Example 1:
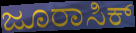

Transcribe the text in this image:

ಜೂರಾಸಿಕ್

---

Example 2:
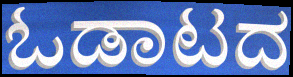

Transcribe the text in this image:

ಓಡಾಟದ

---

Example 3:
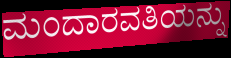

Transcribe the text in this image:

ಮಂದಾರವತಿಯನ್ನು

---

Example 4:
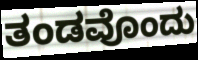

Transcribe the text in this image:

ತಂಡವೊಂದು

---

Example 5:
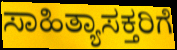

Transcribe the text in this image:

ಸಾಹಿತ್ಯಾಸಕ್ತರಿಗೆ